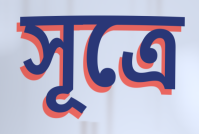
সূত্ৰে